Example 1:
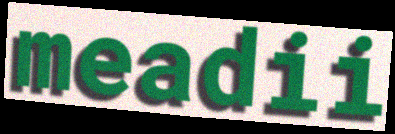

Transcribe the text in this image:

meadii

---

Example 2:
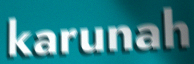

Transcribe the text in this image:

karunah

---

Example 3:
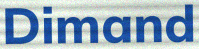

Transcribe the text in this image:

Dimand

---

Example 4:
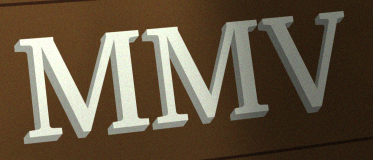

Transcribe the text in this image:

MMV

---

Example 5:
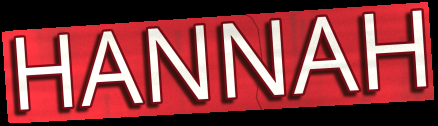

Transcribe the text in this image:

HANNAH